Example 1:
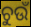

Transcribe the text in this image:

ଚୁଉଁ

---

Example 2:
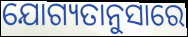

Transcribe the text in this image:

ଯୋଗ୍ୟତାନୁସାରେ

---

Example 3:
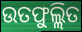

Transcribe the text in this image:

ଉତଫୁଲ୍ଲିତ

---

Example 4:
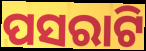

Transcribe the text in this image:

ପସରାଟି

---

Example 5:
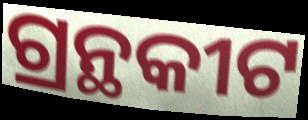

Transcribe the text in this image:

ଗ୍ରନ୍ଥକୀଟ